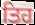
ਤਿਹ